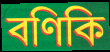
বণিকি